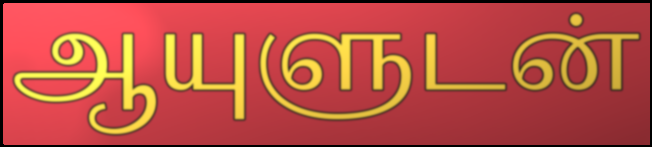
ஆயுளுடன்